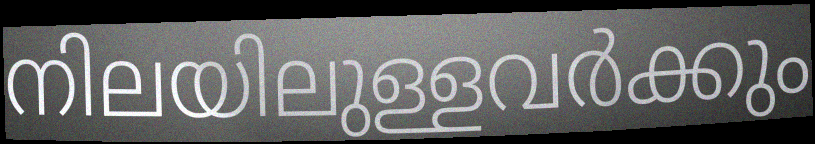
നിലയിലുള്ളവർക്കും